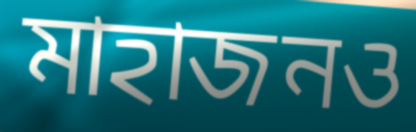
মাহাজনও